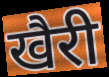
खैरी